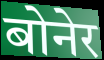
बोनेर